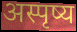
अस्पृष्य